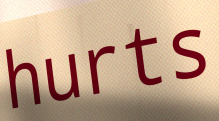
hurts